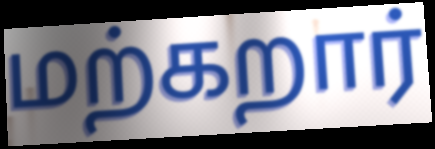
மற்கறார்